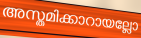
അസ്തമിക്കാറായല്ലോ